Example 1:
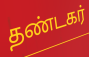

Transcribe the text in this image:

தண்டகர்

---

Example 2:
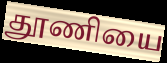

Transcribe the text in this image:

தூணியை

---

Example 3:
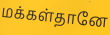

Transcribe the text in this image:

மக்கள்தானே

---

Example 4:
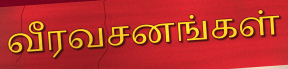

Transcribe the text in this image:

வீரவசனங்கள்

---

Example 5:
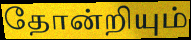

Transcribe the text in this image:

தோன்றியும்